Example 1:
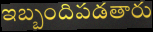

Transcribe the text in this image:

ఇబ్బందిపడతారు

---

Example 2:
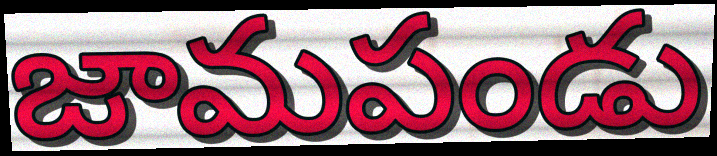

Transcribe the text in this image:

జామపండు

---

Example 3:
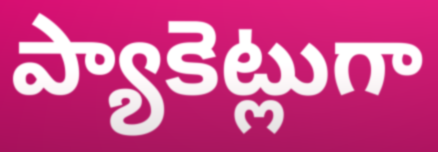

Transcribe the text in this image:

ప్యాకెట్లుగా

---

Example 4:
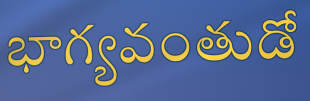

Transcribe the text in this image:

భాగ్యవంతుడో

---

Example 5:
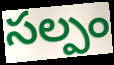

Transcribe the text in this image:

సల్పం